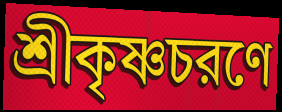
শ্রীকৃষ্ণচরণে